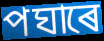
পঘাৰে